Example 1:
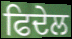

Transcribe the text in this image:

ਫਿਦੇਲ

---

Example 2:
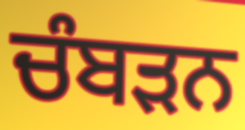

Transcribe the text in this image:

ਚੰਬੜਨ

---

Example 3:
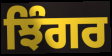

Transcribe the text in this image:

ਝਿੰਗਰ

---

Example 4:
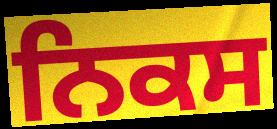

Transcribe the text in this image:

ਨਿਕਸ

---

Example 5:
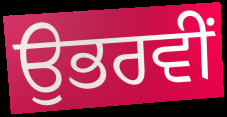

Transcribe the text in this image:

ਉਭਰਵੀਂ